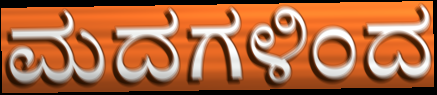
ಮದಗಳಿಂದ